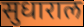
सुधाराल